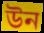
উন